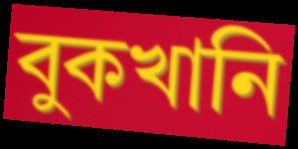
বুকখানি